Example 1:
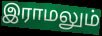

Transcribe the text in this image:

இராமலும்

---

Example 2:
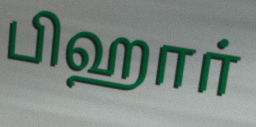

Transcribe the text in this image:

பிஹார்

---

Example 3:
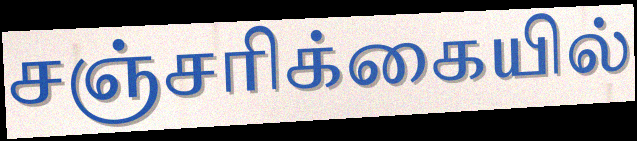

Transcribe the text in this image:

சஞ்சரிக்கையில்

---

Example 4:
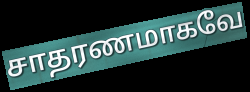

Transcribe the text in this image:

சாதரணமாகவே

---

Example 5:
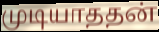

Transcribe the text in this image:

முடியாததன்